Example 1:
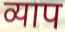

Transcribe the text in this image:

व्याप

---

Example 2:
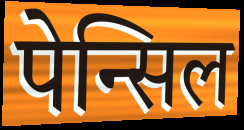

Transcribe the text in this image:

पेन्सिल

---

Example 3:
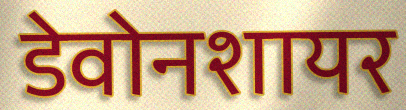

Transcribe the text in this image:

डेवोनशायर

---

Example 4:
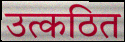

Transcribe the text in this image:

उत्कठित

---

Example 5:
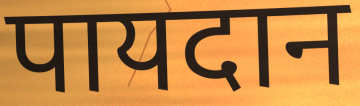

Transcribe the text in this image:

पायदान